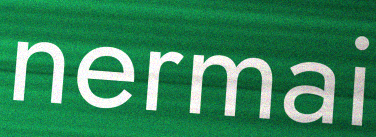
nermai